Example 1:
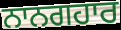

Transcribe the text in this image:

ਨਾਨਗਹਾਰ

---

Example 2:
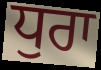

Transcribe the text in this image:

ਧੁਰਾ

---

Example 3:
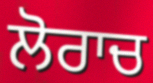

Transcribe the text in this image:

ਲੋਰਾਚ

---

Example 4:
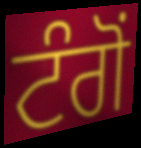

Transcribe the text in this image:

ਟੰਗੋਂ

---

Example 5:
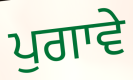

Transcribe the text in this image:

ਪੁਗਾਵੇ